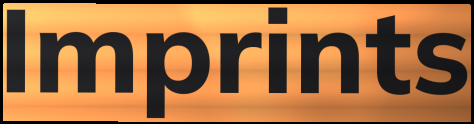
Imprints